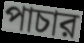
পাচার